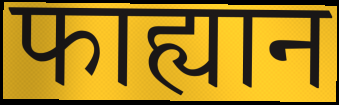
फाह्यान